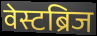
वेस्टब्रिज